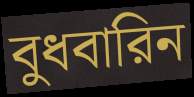
বুধবারিন